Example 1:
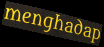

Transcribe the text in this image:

menghadap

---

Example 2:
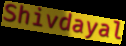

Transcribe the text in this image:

Shivdayal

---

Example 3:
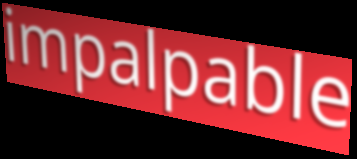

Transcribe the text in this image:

impalpable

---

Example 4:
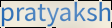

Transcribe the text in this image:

pratyaksh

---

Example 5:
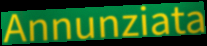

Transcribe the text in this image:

Annunziata